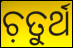
ଚ଼ତୁର୍ଥ